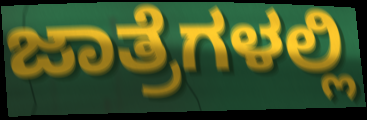
ಜಾತ್ರೆಗಳಲ್ಲಿ